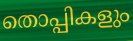
തൊപ്പികളും